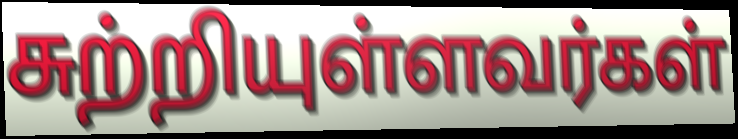
சுற்றியுள்ளவர்கள்